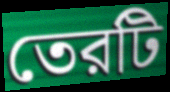
তেরটি